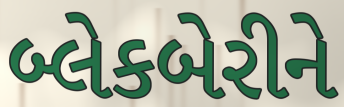
બ્લેકબેરીને